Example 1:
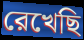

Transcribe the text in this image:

রেখেছি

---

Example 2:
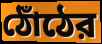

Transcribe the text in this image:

ঠোঁঠের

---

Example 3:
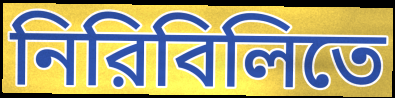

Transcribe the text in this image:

নিরিবিলিতে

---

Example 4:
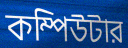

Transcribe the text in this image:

কম্পিউটার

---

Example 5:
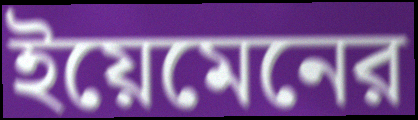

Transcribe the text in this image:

ইয়েমেনের